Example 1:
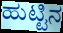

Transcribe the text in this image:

ಹುಟ್ಟಿನ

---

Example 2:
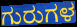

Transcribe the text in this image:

ಗುರುಗಳ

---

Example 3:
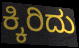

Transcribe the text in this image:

ಕ್ಕಿರಿದು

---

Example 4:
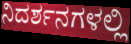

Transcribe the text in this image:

ನಿದರ್ಶನಗಳಲ್ಲಿ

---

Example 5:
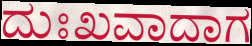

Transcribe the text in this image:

ದುಃಖವಾದಾಗ